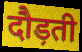
दौड़ती